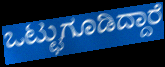
ಒಟ್ಟುಗೂಡಿದ್ದಾರೆ